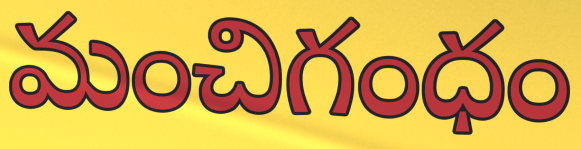
మంచిగంధం